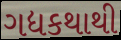
ગદ્યકથાથી